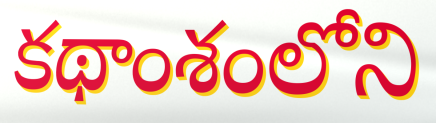
కథాంశంలోని